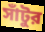
সাঁটুর